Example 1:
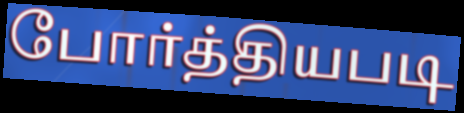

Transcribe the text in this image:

போர்த்தியபடி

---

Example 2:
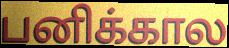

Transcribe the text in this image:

பனிக்கால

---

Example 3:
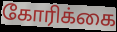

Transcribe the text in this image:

கோரிக்கை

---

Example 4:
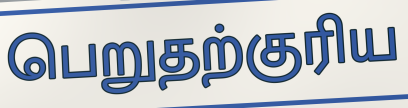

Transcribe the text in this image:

பெறுதற்குரிய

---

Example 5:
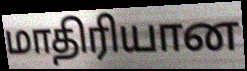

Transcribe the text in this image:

மாதிரியான